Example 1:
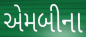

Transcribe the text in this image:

એમબીના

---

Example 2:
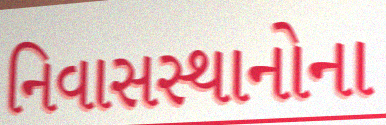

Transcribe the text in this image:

નિવાસસ્થાનોના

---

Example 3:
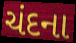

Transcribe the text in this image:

ચંદના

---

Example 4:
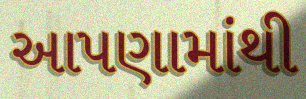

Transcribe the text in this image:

આપણામાંથી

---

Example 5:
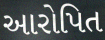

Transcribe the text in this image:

આરોપિત